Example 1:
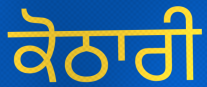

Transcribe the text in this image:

ਕੋਠਾਰੀ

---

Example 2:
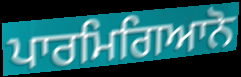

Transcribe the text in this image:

ਪਾਰਮਿਗਿਆਨੋ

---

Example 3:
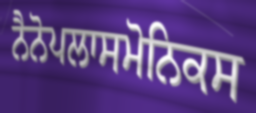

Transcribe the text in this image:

ਨੈਨੋਪਲਾਸਮੋਨਿਕਸ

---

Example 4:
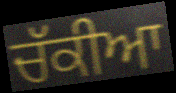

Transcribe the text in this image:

ਚੱਕੀਆ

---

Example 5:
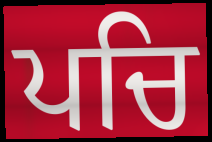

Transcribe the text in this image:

ਪਚਿ